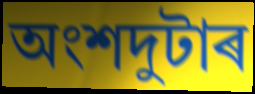
অংশদুটাৰ